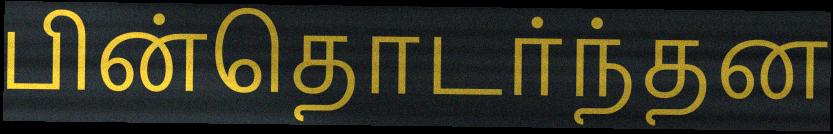
பின்தொடர்ந்தன